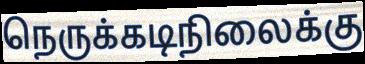
நெருக்கடிநிலைக்கு